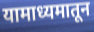
यामाध्यमातून